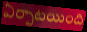
ఏర్పాటయింది